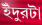
ইঁদুরটা